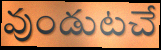
వుండుటచే